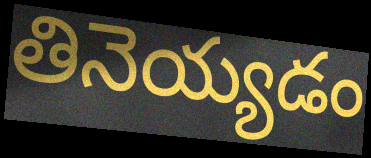
తినెయ్యడం